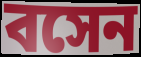
বসেন